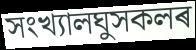
সংখ্যালঘুসকলৰ